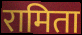
रामिता